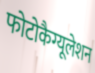
फोटोकैग्यूलेशन